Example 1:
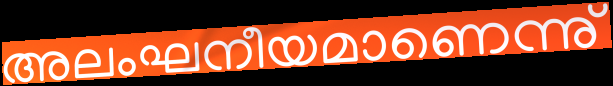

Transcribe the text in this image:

അലംഘനീയമാണെന്നു്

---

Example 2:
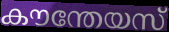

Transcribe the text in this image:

കൗന്തേയസ്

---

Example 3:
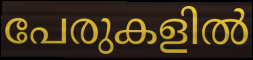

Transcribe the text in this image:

പേരുകളിൽ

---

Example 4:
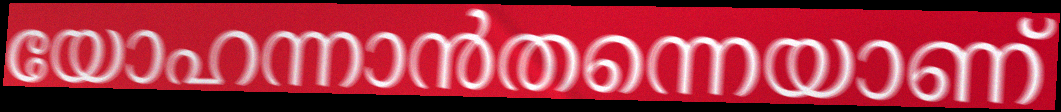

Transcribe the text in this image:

യോഹന്നാൻതന്നെയാണ്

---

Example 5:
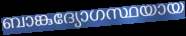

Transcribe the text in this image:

ബാങ്കുദ്യോഗസ്ഥയായ